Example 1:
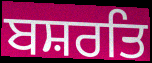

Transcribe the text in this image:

ਬਸ਼ਰਤਿ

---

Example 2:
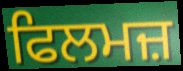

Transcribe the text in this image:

ਫਿਲਮਜ਼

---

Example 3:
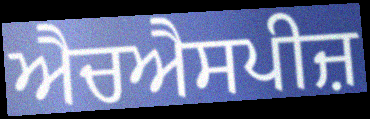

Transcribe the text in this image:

ਐਚਐਸਪੀਜ਼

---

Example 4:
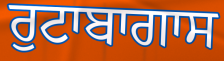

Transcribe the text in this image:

ਰੁਟਾਬਾਗਾਸ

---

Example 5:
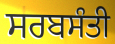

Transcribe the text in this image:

ਸਰਬਸੰਤੀ